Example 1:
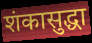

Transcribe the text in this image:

शंकासुद्धा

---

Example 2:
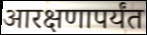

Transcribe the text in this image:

आरक्षणापर्यंत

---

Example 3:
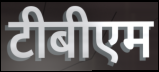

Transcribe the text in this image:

टीबीएम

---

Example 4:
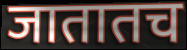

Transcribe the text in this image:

जातातच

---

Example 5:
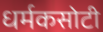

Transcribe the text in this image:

धर्मकसोटी